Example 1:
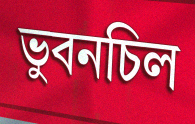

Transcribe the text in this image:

ভুবনচিল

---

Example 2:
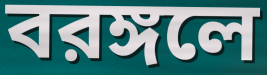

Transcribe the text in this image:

বরঙ্গলে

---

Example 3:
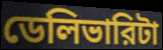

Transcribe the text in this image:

ডেলিভারিটা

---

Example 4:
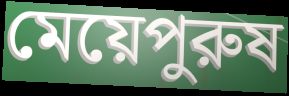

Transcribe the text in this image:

মেয়েপুরুষ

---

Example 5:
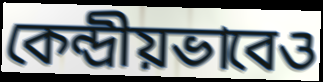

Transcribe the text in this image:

কেন্দ্রীয়ভাবেও